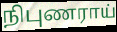
நிபுணராய்